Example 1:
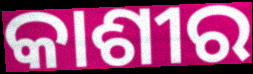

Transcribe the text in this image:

କାଶୀର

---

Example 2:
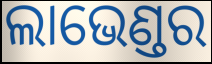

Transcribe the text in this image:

ଲାଭେଣ୍ଡର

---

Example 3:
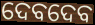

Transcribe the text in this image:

ଦେବଦେବ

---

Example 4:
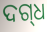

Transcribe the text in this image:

ଦଗ୍‍ଧ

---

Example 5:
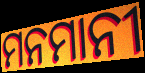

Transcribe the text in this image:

ମନମାନୀ